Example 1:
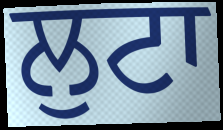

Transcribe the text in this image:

ਲੁਟਾ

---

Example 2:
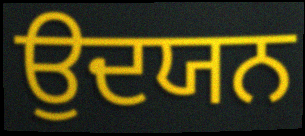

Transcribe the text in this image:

ਉਦਯਨ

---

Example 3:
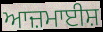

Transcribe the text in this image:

ਆਜ਼ਮਾਈਸ਼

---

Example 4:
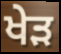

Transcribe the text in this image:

ਖੇੜ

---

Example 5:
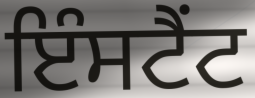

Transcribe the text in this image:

ਇੰਸਟੈਂਟ